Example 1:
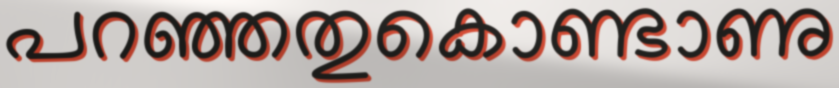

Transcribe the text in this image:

പറഞ്ഞതുകൊണ്ടാണു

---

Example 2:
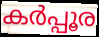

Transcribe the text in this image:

കർപ്പൂര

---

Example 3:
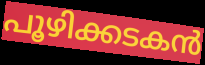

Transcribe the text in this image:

പൂഴിക്കടകൻ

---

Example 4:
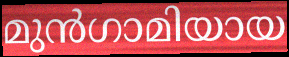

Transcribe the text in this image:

മുൻഗാമിയായ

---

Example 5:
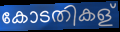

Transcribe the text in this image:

കോടതികള്